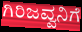
ಗಿರಿಜವ್ವನಿಗೆ